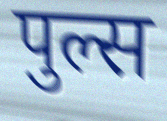
पुल्स